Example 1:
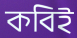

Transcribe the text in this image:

কবিই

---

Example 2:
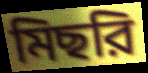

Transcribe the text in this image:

মিছরি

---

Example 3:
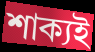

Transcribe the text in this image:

শাক্যই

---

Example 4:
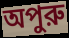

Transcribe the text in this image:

অপুরু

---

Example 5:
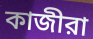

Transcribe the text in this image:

কাজীরা